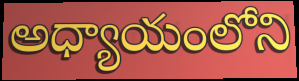
అధ్యాయంలోని